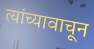
त्यांच्यावाचून